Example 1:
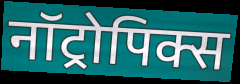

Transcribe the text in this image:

नॉट्रोपिक्स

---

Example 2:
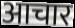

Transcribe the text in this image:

आचार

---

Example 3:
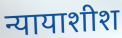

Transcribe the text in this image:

न्यायाशीश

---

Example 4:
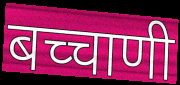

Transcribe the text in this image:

बच्चाणी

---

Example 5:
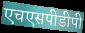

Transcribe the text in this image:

एचएसपीडीपी